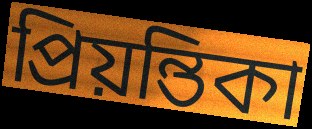
প্রিয়ন্তিকা